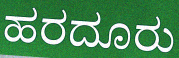
ಹರದೂರು